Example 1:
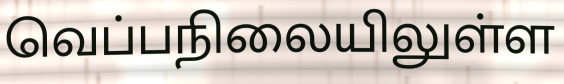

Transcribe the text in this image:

வெப்பநிலையிலுள்ள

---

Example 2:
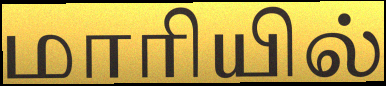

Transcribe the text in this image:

மாரியில்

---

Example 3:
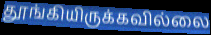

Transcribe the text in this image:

தூங்கியிருக்கவில்லை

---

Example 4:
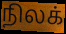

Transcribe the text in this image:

நிலக்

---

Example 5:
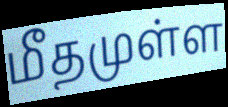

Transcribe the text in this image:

மீதமுள்ள